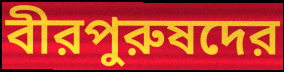
বীরপুরুষদের